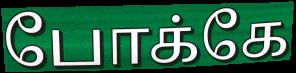
போக்கே